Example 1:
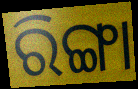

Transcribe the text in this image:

ରିଙ୍ଗା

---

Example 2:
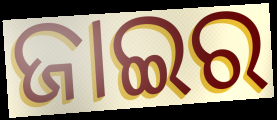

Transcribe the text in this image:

ଜାଇର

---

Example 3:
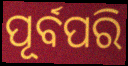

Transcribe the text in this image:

ପୂର୍ବପରି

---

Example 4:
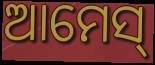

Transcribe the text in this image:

ଆମେସ୍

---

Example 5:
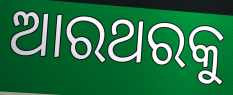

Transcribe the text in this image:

ଆରଥରକୁ